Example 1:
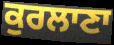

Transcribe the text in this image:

ਕੁਰਲਾਣਾ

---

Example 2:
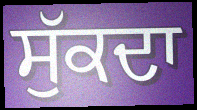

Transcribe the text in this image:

ਸੁੱਕਦਾ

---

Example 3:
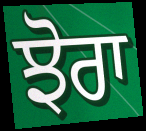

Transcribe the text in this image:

ਝੋਰਾ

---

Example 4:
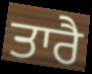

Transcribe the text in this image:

ਤਾਰੈ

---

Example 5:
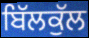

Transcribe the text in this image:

ਬਿੱਲਕੁੱਲ